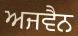
ਅਜਵੈਨ